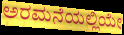
ಅರಮನೆಯಲ್ಲಿಯೇ